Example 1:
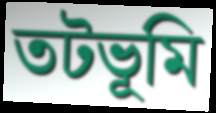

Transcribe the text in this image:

তটভূমি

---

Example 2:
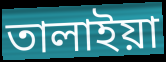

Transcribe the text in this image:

তালাইয়া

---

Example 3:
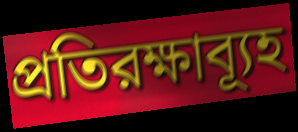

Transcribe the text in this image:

প্রতিরক্ষাব্যূহ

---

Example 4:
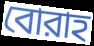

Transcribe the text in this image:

বোরাহ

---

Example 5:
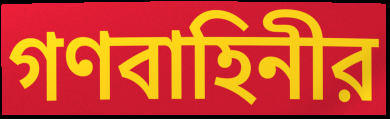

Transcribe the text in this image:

গণবাহিনীর